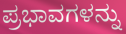
ಪ್ರಭಾವಗಳನ್ನು